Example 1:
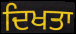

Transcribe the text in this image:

ਦਿਖਤਾ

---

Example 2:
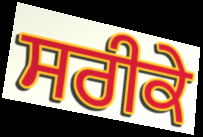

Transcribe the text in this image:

ਸਰੀਕੇ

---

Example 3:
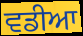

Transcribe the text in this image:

ਵਡੀਆ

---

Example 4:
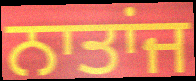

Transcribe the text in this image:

ਨਾਤਾਂਜ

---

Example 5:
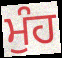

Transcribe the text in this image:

ਮੁੰਹ